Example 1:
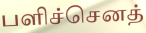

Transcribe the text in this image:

பளிச்செனத்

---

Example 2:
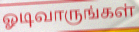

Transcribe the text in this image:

ஓடிவாருங்கள்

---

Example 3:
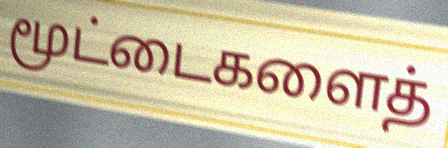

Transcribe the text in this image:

மூட்டைகளைத்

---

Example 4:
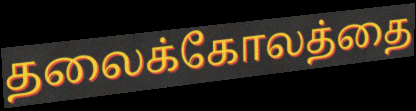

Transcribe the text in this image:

தலைக்கோலத்தை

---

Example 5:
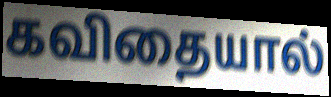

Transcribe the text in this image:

கவிதையால்